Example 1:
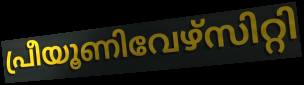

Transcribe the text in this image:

പ്രീയൂണിവേഴ്സിറ്റി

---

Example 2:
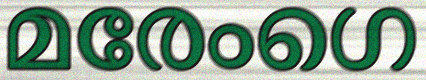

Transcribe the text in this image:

മരേംഗെ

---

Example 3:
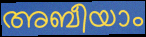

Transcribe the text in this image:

അബീയാം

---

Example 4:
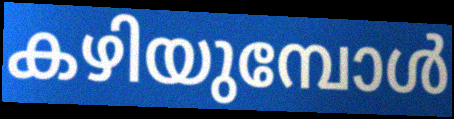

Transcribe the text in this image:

കഴിയുമ്പോൾ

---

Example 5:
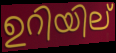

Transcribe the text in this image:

ഉറിയില്